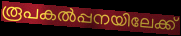
രൂപകൽപ്പനയിലേക്ക്